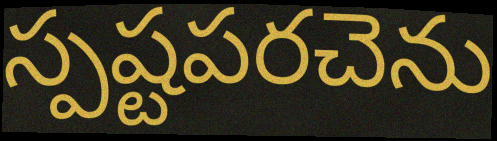
స్పష్టపరచెను